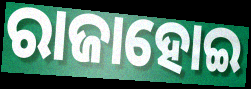
ରାଜାହୋଇ